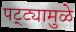
पट्ट्यामुळे